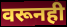
वरूनही